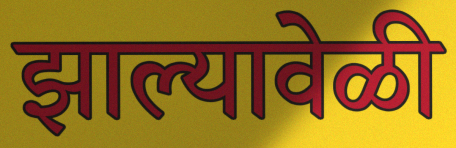
झाल्यावेळी